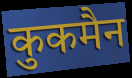
कुकमैन